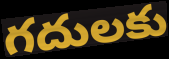
గదులకు